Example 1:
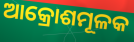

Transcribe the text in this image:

ଆକ୍ରୋଶମୂଳକ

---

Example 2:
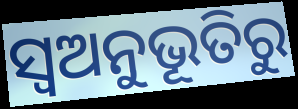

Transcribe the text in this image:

ସ୍ୱଅନୁଭୂତିରୁ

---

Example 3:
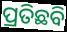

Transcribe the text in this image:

ପ୍ରତିଛବି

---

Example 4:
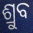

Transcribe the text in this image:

ଶ୍ରୁବ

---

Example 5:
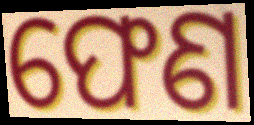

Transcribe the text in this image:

ଫେଣ